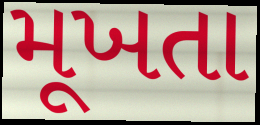
મૂખતા